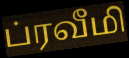
ப்ரவீமி